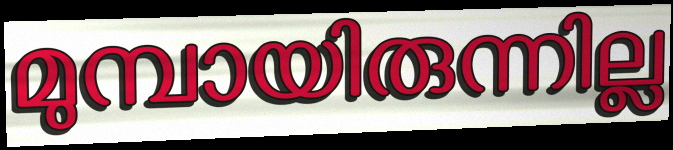
മുമ്പായിരുന്നില്ല